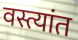
वस्त्यांत